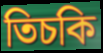
তিচকি